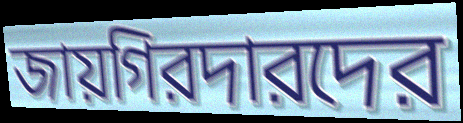
জায়গিরদারদের